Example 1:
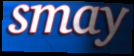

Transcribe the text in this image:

smay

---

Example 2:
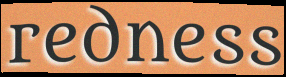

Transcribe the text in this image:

redness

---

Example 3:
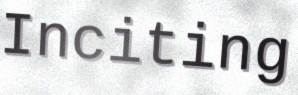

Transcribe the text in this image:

Inciting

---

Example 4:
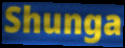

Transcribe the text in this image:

Shunga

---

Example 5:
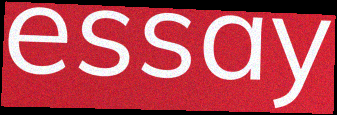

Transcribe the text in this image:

essay